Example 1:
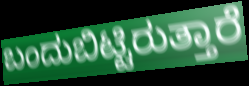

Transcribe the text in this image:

ಬಂದುಬಿಟ್ಟಿರುತ್ತಾರೆ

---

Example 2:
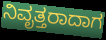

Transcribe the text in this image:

ನಿವೃತ್ತರಾದಾಗ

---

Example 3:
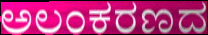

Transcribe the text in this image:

ಅಲಂಕರಣದ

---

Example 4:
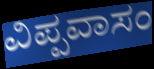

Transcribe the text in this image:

ವಿಪ್ಪವಾಸಂ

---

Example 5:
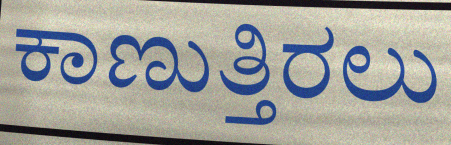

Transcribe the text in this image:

ಕಾಣುತ್ತಿರಲು